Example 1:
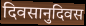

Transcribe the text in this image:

दिवसानुदिवस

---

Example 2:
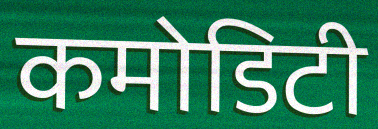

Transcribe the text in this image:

कमोडिटी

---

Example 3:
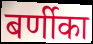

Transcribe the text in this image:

बर्णीका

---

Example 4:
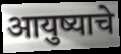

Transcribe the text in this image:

आयुष्याचे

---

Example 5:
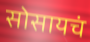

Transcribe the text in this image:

सोसायचं